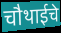
चौथाईचे